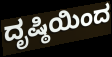
ದೃಷ್ಠಿಯಿಂದ